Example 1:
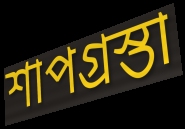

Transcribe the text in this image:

শাপগ্রস্তা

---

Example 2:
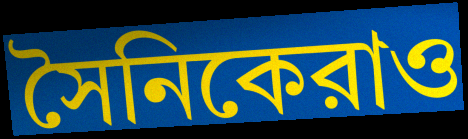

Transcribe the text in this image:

সৈনিকেরাও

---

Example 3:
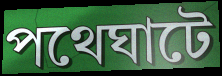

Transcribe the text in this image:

পথেঘাটে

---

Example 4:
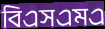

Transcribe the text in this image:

বিএসএমএ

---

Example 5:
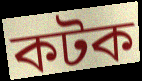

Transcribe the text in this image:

কটক